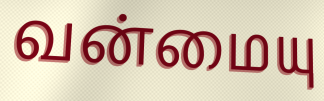
வன்மையு